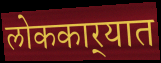
लोककार्यात